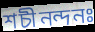
শচীনন্দনঃ